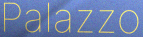
Palazzo